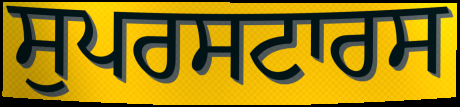
ਸੁਪਰਸਟਾਰਸ